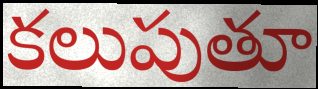
కలుపుతూ